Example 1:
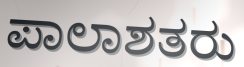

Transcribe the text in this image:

ಪಾಲಾಶತರು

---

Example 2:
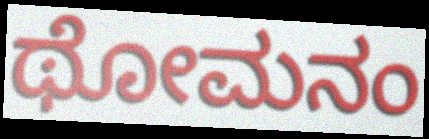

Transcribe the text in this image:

ಥೋಮನಂ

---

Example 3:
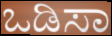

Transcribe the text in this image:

ಒಡಿಸಾ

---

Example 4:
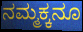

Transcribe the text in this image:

ನಮ್ಮಕ್ಕನೂ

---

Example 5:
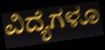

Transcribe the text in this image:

ವಿದ್ಯೆಗಳೂ